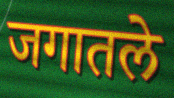
जगातले